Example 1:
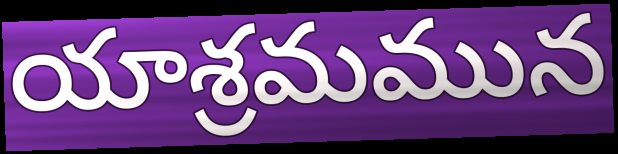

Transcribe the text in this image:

యాశ్రమమున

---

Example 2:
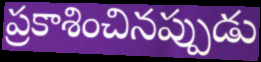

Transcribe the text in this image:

ప్రకాశించినప్పుడు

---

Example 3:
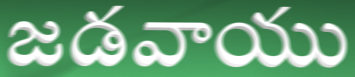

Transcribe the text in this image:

జడవాయు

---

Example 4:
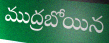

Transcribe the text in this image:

ముద్రబోయిన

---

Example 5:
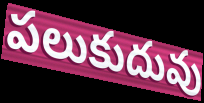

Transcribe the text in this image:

పలుకుదువు